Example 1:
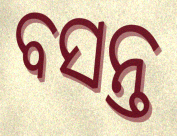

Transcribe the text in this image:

ବସନ୍ତ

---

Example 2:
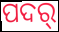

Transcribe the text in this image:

ପଦର୍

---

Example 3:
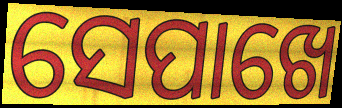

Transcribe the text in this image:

ସେପାଖେ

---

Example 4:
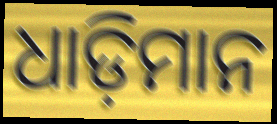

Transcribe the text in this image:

ଧାଡ଼ିମାନ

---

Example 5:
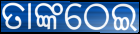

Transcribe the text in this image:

ତାଙ୍କଠେଇ